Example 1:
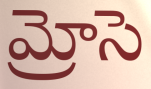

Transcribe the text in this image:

మ్రోసె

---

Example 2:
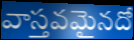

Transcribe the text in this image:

వాస్తవమైనదో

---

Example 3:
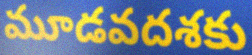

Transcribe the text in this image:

మూడవదశకు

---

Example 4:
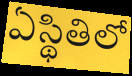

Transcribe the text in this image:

ఏస్థితిలో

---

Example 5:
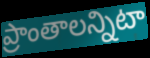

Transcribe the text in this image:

ప్రాంతాలన్నిటా